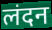
लंदन